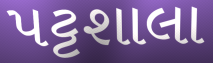
પટ્ટશાલા